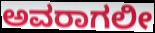
ಅವರಾಗಲೀ